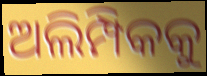
ଅଲିମ୍ପିକକୁ